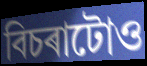
বিচৰাটোও